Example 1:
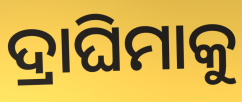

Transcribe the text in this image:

ଦ୍ରାଘିମାକୁ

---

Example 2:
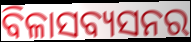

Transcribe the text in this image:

ବିଳାସବ୍ୟସନର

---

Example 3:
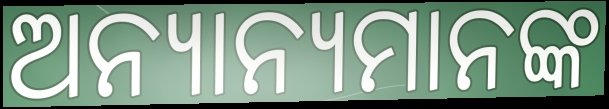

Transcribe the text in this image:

ଅନ୍ୟାନ୍ୟମାନଙ୍କ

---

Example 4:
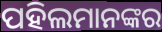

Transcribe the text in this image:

ପହିଲମାନଙ୍କର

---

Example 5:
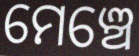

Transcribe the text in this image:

ମେଞ୍ଚେ